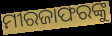
ମୀରଜାଫରଙ୍କୁ